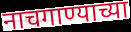
नाचगाण्याच्या